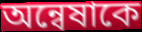
অন্বেষাকে